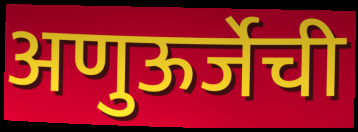
अणुऊर्जेची